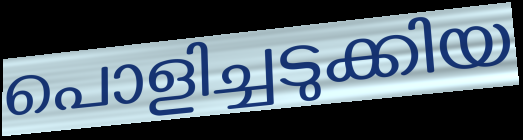
പൊളിച്ചടുക്കിയ